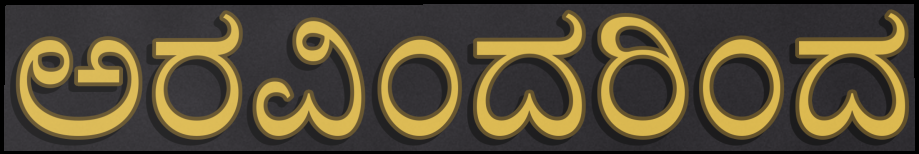
ಅರವಿಂದರಿಂದ